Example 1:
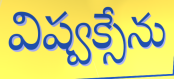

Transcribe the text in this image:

విష్వక్సేను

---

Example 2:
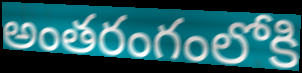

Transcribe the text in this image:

అంతరంగంలోకి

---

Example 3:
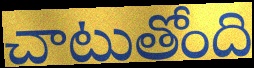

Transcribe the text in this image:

చాటుతోంది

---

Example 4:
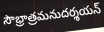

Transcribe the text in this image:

సౌభ్రాత్రమనుదర్శయన్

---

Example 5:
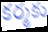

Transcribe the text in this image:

కర్మకు